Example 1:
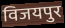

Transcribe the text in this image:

विजयपुर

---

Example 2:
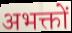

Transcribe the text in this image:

अभक्तों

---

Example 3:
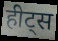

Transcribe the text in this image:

हीट्स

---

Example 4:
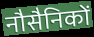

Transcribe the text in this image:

नौसैनिकों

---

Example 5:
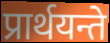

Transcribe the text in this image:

प्रार्थयन्ते